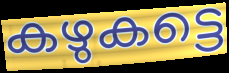
കഴുകട്ടെ